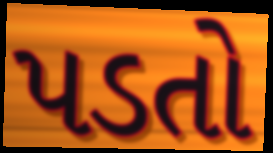
પડતો